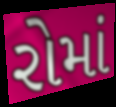
રોમાં